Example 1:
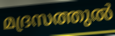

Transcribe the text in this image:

മദ്രസത്തുൽ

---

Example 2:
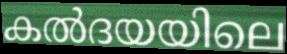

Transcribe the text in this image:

കൽദയയിലെ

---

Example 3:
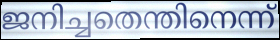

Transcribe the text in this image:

ജനിച്ചതെന്തിനെന്ന്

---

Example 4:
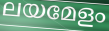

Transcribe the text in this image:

ലയമേളം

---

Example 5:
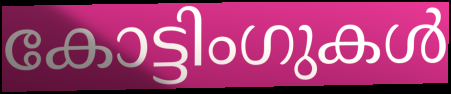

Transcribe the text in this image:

കോട്ടിംഗുകൾ